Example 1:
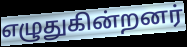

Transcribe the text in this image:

எழுதுகின்றனர்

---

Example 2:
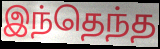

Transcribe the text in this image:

இந்தெந்த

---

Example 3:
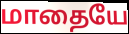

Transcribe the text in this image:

மாதையே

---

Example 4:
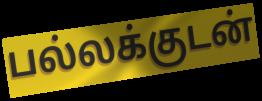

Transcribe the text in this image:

பல்லக்குடன்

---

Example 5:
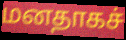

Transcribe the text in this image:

மனதாகச்